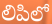
లిపిలో